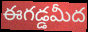
ఈగడ్డమీద